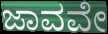
ಜಾವವೇ